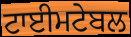
ਟਾਈਮਟੇਬਲ